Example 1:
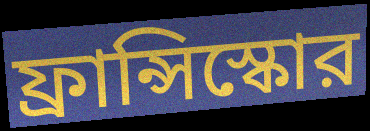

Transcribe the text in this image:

ফ্রান্সিস্কোর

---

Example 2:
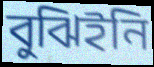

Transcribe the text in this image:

বুঝিইনি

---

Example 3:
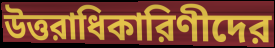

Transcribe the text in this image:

উত্তরাধিকারিণীদের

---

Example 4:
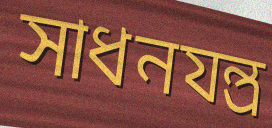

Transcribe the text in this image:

সাধনযন্ত্র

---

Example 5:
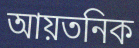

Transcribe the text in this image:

আয়তনিক